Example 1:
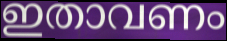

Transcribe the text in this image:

ഇതാവണം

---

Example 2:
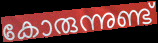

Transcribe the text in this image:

കോരുന്നുണ്ട്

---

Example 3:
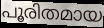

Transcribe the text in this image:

പൂരിതമായ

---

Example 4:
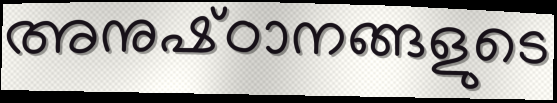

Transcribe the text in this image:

അനുഷ്‌ഠാനങ്ങളുടെ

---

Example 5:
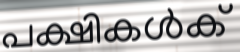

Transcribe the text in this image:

പക്ഷികൾക്